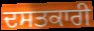
ਦਸਤਕਾਰੀ